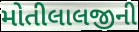
મોતીલાલજીની